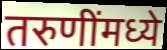
तरुणींमध्ये